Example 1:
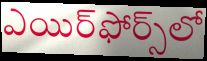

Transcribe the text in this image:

ఎయిర్‌ఫోర్స్‌లో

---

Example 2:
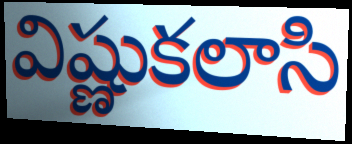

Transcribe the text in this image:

విష్ణుకలాసి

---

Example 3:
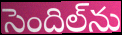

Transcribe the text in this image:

సెందిల్‌ను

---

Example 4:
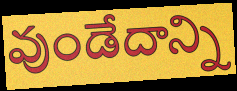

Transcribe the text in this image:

వుండేదాన్ని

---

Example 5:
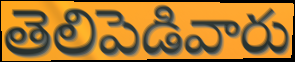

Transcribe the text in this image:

తెలిపెడివారు